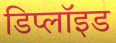
डिप्लॉइड